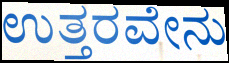
ಉತ್ತರವೇನು